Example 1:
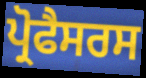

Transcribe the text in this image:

ਪ੍ਰੋਫੈਸਰਸ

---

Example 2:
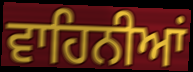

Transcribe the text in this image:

ਵਾਹਿਨੀਆਂ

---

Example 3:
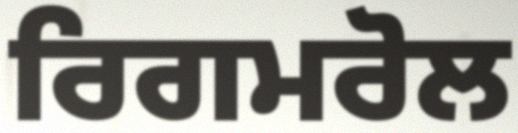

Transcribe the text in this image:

ਰਿਗਮਰੋਲ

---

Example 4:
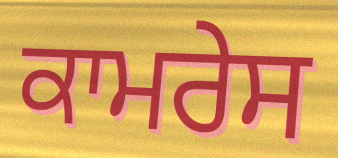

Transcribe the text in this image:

ਕਾਮਰੇਸ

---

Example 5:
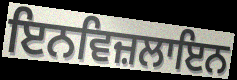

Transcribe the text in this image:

ਇਨਵਿਜ਼ਲਾਇਨ